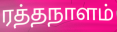
ரத்தநாளம்